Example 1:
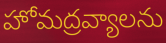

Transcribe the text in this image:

హోమద్రవ్యాలను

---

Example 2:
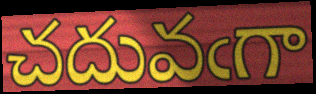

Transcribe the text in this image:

చదువఁగా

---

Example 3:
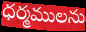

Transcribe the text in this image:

ధర్మములను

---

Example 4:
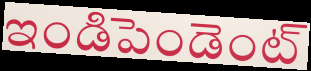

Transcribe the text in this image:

ఇండిపెండెంట్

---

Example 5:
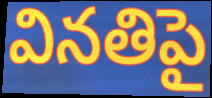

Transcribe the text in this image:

వినతిపై